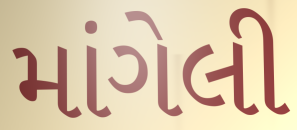
માંગેલી